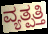
ವ್ಯತ್ಪತ್ತಿ